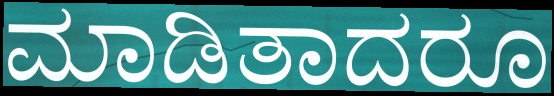
ಮಾಡಿತಾದರೂ